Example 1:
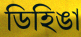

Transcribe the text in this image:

ডিহিঙা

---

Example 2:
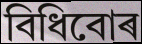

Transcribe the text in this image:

বিধিবোৰ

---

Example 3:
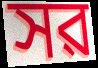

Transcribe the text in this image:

সৱ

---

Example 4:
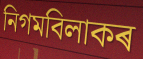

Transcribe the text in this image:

নিগমবিলাকৰ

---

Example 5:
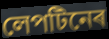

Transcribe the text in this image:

লেপটিনেৰ